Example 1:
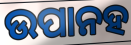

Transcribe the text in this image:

ଉପାନହ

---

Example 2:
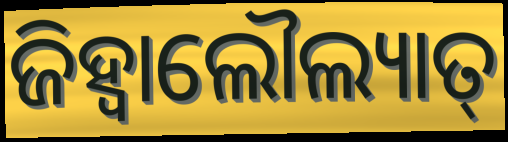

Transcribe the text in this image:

ଜିହ୍ଵାଲୌଲ୍ୟାତ୍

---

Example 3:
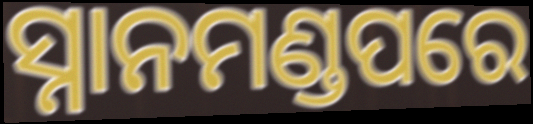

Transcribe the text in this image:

ସ୍ନାନମଣ୍ଡପରେ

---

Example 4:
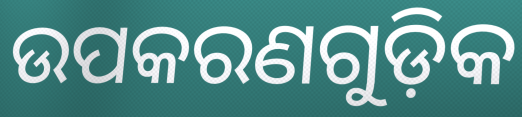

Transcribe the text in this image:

ଉପକରଣଗୁଡ଼ିକ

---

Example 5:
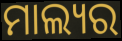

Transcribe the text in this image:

ମାଲ୍ୟର